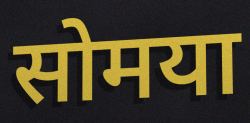
सोमया